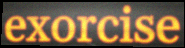
exorcise